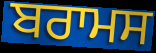
ਬਰਾਮਸ